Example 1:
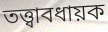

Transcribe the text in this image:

তত্ত্বাবধায়ক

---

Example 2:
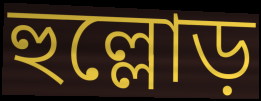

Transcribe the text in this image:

হুল্লোড়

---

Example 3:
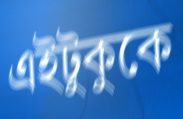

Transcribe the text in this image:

এইটুকুকে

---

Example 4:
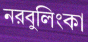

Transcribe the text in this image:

নরবুলিংকা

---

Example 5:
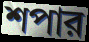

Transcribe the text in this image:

শপার